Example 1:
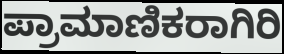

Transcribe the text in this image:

ಪ್ರಾಮಾಣಿಕರಾಗಿರಿ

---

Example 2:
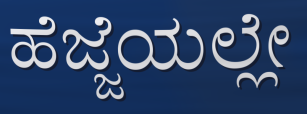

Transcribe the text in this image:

ಹೆಜ್ಜೆಯಲ್ಲೇ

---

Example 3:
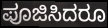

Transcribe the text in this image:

ಪೂಜಿಸಿದರೂ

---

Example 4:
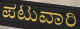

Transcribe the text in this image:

ಪಟುವಾರಿ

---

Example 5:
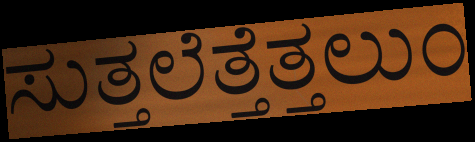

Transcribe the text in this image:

ಸುತ್ತಲೆತ್ತೆತ್ತಲುಂ